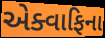
એક્વાફિના